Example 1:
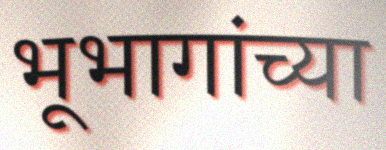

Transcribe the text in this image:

भूभागांच्या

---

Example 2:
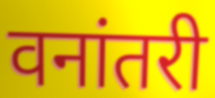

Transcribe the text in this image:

वनांतरी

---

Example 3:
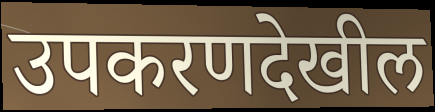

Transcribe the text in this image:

उपकरणदेखील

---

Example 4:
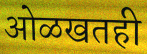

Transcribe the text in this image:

ओळखतही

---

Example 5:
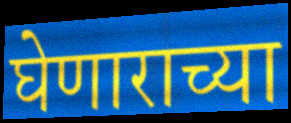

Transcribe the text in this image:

घेणाराच्या